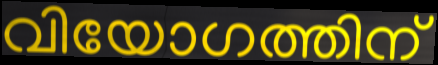
വിയോഗത്തിന്